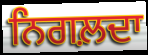
ਨਿਗਲ਼ਦਾ